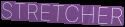
STRETCHER